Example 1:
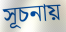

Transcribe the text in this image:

সূচনায়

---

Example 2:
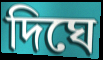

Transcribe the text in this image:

দিঘে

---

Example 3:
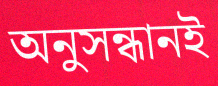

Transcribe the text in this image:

অনুসন্ধানই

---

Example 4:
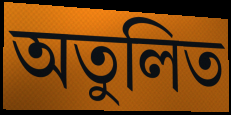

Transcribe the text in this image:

অতুলিত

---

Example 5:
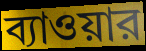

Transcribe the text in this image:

ব্যাওয়ার